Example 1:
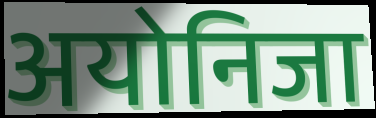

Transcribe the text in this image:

अयोनिजा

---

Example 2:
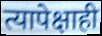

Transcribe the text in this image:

त्यापेक्षाही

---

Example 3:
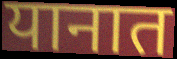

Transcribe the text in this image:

यानात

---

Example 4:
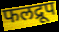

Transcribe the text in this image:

फलद्रूप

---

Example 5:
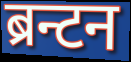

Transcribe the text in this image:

ब्रन्टन